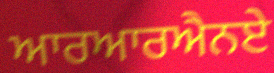
ਆਰਆਰਐਨਏ